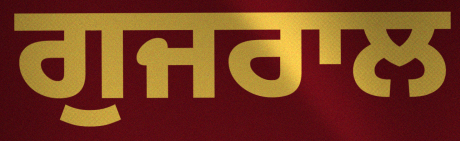
ਗੁਜਰਾਲ